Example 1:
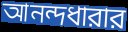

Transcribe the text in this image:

আনন্দধারার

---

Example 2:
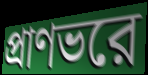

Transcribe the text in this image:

প্রাণভরে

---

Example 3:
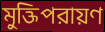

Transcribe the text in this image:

মুক্তিপরায়ণ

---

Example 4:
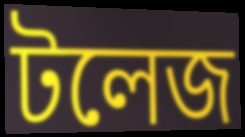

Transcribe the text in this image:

টলেজ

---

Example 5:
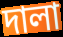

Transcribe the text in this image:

দালা